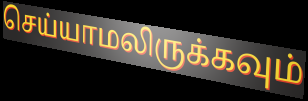
செய்யாமலிருக்கவும்